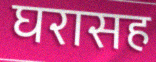
घरासह